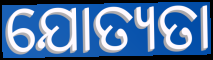
ଯୋତ୍ୟତା